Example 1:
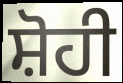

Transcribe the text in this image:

ਸ਼ੋਹੀ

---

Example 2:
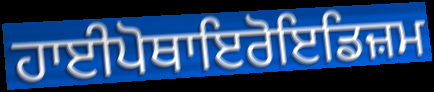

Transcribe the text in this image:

ਹਾਈਪੋਥਾਇਰੋਇਡਿਜ਼ਮ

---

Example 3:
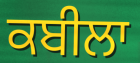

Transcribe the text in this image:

ਕਬੀਲਾ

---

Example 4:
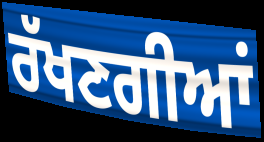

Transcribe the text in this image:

ਰੱਖਣਗੀਆਂ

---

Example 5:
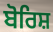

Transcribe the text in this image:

ਬੋਰਿਸ਼